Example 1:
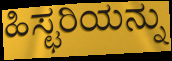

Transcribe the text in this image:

ಹಿಸ್ಟರಿಯನ್ನು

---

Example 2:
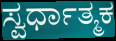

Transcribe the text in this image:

ಸ್ವರ್ಧಾತ್ಮಕ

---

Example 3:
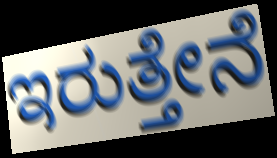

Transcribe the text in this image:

ಇರುತ್ತೇನೆ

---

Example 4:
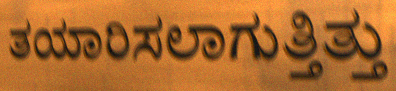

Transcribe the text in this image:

ತಯಾರಿಸಲಾಗುತ್ತಿತ್ತು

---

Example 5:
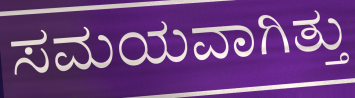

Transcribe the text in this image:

ಸಮಯವಾಗಿತ್ತು